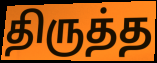
திருத்த